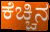
ಕೆಚ್ಚಿನ